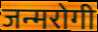
जन्मरोगी